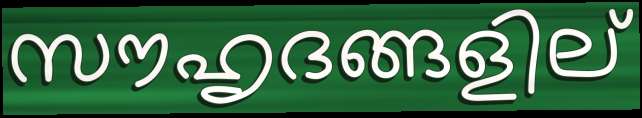
സൗഹൃദങ്ങളില്